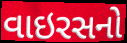
વાઇરસનો